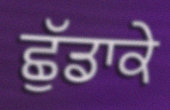
ਛੁੱਡਾਕੇ